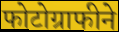
फोटोग्राफीने